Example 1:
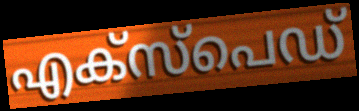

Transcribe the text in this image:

എക്സ്പെഡ്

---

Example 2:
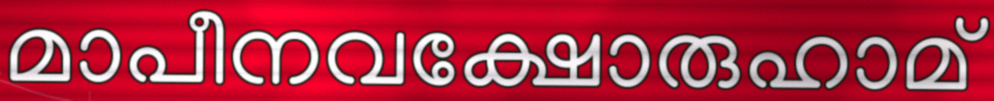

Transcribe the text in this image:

മാപീനവക്ഷോരുഹാമ്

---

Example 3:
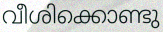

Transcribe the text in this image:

വീശിക്കൊണ്ടു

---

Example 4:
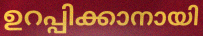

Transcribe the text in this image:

ഉറപ്പിക്കാനായി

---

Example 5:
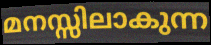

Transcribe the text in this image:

മനസ്സിലാകുന്ന